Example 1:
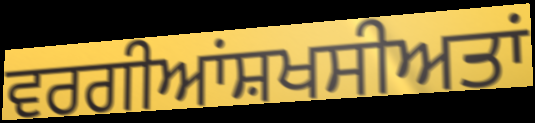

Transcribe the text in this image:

ਵਰਗੀਆਂਸ਼ਖਸੀਅਤਾਂ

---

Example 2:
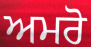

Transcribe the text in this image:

ਅਮਰੋ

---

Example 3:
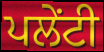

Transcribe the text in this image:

ਪਲੇਂਟੀ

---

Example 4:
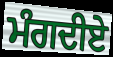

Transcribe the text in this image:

ਮੰਗਦੀਏ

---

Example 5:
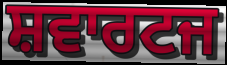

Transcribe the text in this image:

ਸ਼ਵਾਰਟਜ